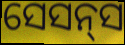
ସେସନ୍‌ସ